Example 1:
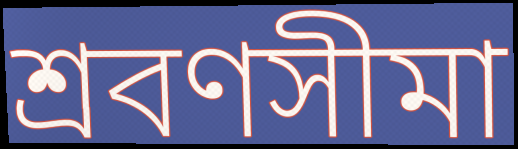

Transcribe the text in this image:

শ্রবণসীমা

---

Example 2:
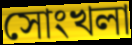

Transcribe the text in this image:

সোংখলা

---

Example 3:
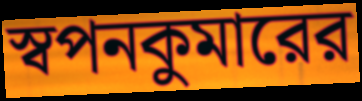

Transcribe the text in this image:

স্বপনকুমারের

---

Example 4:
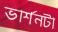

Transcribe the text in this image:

ভার্শনটা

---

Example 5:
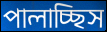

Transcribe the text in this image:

পালাচ্ছিস